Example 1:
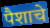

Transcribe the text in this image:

पैशाचे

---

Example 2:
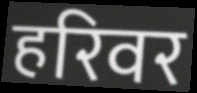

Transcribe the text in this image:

हरिवर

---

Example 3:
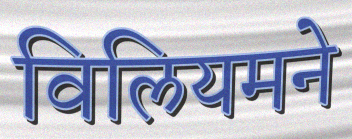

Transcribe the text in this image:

विलियमने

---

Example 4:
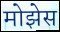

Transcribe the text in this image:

मोझेस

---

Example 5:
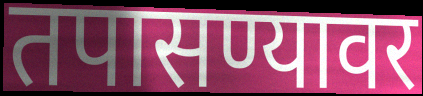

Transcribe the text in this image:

तपासण्यावर